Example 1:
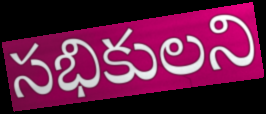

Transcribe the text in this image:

సభికులని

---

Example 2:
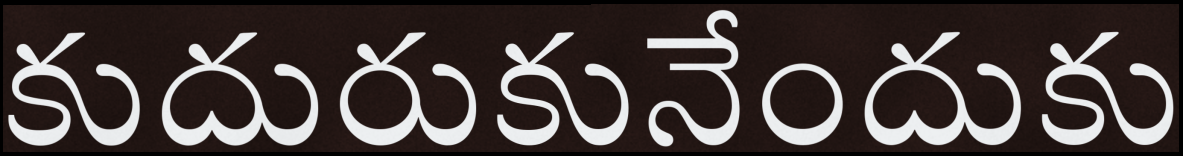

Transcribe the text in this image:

కుదురుకునేందుకు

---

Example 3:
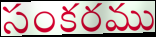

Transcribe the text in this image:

సంకరము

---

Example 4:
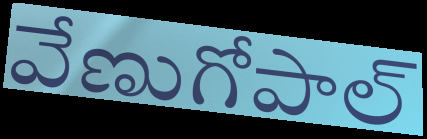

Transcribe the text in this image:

వేణుగోపాల్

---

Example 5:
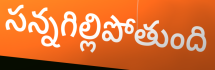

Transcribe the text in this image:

సన్నగిల్లిపోతుంది